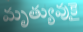
మృత్యువుకై